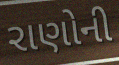
રાણોની